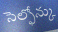
సెల్ఫోన్కు